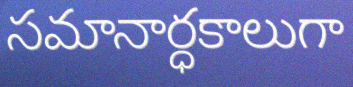
సమానార్ధకాలుగా